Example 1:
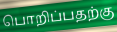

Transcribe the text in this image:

பொறிப்பதற்கு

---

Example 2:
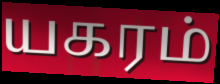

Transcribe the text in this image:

யகரம்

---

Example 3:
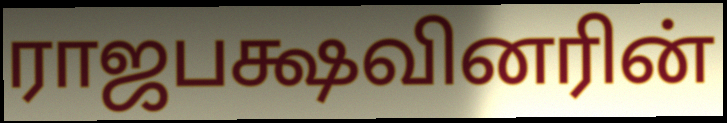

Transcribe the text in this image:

ராஜபக்ஷவினரின்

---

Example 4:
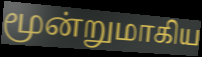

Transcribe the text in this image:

மூன்றுமாகிய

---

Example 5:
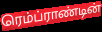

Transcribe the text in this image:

ரெம்ப்ராண்டின்